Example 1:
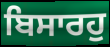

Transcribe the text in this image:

ਬਿਸਾਰਹੁ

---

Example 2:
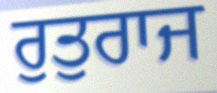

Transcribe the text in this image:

ਰੁਤੁਰਾਜ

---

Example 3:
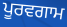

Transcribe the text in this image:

ਪੂਰਵਗਾਮ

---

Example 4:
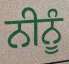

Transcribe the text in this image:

ਨੀਨੂੰ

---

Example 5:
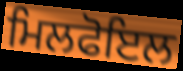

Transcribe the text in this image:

ਮਿਲਫੋਇਲ